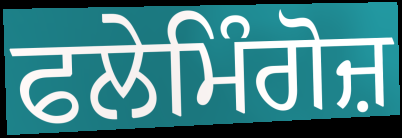
ਫਲੇਮਿੰਗੋਜ਼